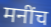
मनींच